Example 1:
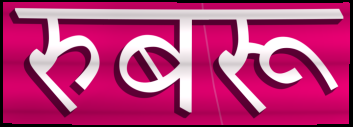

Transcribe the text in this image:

रुबरू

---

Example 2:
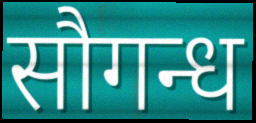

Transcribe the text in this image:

सौगन्ध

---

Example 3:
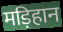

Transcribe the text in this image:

मड़िहान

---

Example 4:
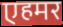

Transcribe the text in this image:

एहमर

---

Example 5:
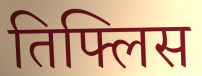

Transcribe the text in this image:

तिफ्लिस